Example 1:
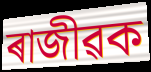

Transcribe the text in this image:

ৰাজীৱক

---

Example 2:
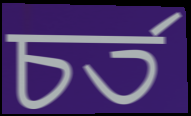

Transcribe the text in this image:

চৰ্ত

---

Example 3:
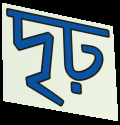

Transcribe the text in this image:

দৃঢ়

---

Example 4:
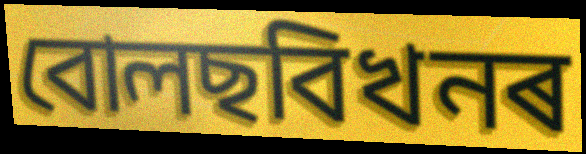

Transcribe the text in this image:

বোলছবিখনৰ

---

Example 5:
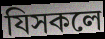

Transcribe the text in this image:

যিসকলে